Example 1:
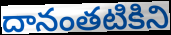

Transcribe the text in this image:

దానంతటికిని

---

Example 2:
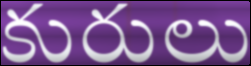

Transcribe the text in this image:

కురులు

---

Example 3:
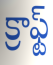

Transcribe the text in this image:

క్రాఫ్ట్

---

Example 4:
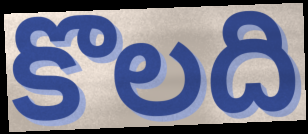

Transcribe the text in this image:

కొలది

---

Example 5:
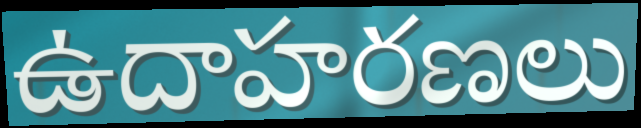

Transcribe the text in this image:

ఉదాహరణలు